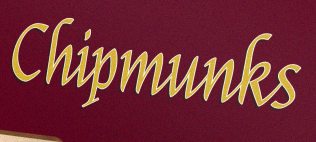
Chipmunks